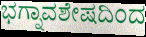
ಭಗ್ನಾವಶೇಷದಿಂದ